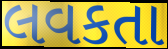
લવકતા